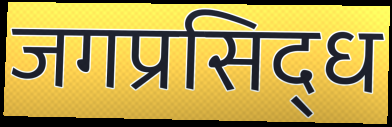
जगप्रसिद्ध